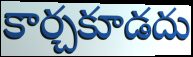
కార్చకూడదు